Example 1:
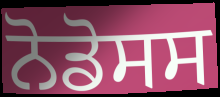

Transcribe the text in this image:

ਨੋਡੋਸਸ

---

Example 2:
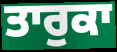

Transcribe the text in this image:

ਤਾਰੁਕਾ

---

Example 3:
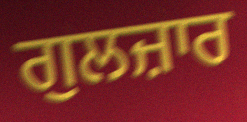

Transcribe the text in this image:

ਗੁਲਜ਼ਾਰ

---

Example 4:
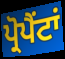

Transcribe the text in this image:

ਪ੍ਰੋਪੈਂਟਾਂ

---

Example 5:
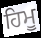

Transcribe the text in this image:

ਹਿਮੂ